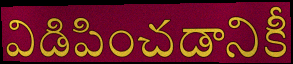
విడిపించడానికీ